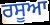
ਰਸੂਆ